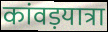
कांवड़यात्रा